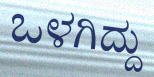
ಒಳಗಿದ್ದು